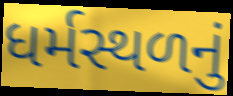
ધર્મસ્થળનું